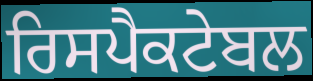
ਰਿਸਪੈਕਟੇਬਲ